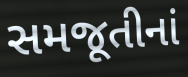
સમજૂતીનાં